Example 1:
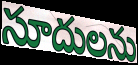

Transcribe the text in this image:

సూదులను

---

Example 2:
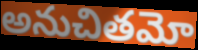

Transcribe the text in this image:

అనుచితమో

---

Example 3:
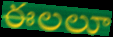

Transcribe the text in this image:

ఈలలూ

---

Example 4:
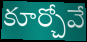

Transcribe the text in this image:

కూర్చోవే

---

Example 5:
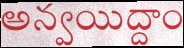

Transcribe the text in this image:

అన్వయిద్దాం